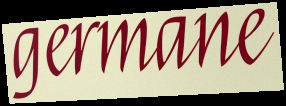
germane